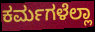
ಕರ್ಮಗಳೆಲ್ಲಾ